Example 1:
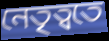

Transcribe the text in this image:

নেতৃত্বতে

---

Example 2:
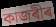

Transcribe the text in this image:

কাজৰীৰ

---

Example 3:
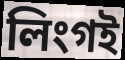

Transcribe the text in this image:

লিংগই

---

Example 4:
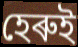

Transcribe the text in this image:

হেৰুই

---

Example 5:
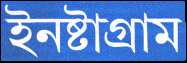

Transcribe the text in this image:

ইনষ্টাগ্ৰাম